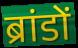
ब्रांडों